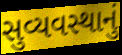
સુવ્યવસ્થાનું